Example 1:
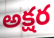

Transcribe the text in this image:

అక్షర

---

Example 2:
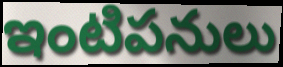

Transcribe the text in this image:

ఇంటిపనులు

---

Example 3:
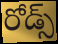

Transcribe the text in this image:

రోడ్స్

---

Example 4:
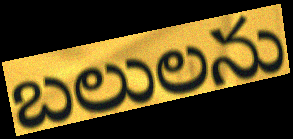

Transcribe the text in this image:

బలులను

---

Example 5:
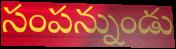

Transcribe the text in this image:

సంపన్నుండు